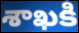
శాఖకి